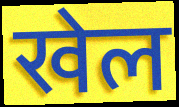
खेल